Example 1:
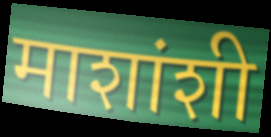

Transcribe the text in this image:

माशांशी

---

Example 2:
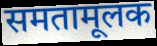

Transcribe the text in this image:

समतामूलक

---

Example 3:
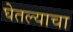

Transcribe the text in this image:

घेतल्याचा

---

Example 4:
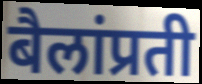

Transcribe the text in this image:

बैलांप्रती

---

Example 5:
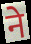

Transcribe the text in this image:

ने